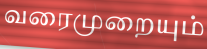
வரைமுறையும்